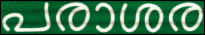
പരാശര